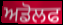
ਅਡੋਲਫ